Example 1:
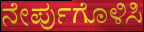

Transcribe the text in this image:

ನೇರ್ಪುಗೊಳಿಸಿ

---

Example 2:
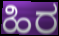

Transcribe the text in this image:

ಹಿರ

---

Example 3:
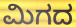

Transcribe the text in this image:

ಮಿಗದ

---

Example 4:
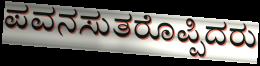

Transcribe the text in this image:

ಪವನಸುತರೊಪ್ಪಿದರು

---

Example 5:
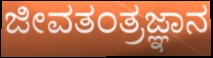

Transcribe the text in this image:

ಜೀವತಂತ್ರಜ್ಞಾನ